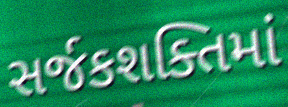
સર્જકશક્તિમાં